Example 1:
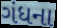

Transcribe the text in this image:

ગંધના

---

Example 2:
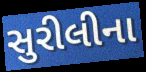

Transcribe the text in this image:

સુરીલીના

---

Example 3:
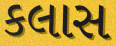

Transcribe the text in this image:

કલાસ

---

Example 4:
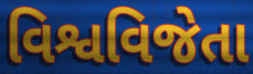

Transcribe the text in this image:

વિશ્વવિજેતા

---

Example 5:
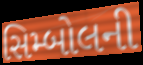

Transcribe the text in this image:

સિમ્બોલની